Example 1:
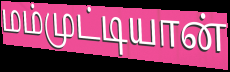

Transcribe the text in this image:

மம்முட்டியான்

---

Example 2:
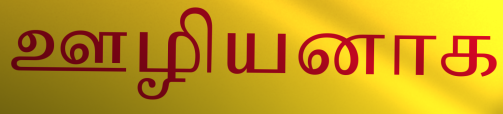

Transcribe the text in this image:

ஊழியனாக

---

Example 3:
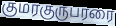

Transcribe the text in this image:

குமரகுருபரரை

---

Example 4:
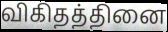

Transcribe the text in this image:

விகிதத்தினை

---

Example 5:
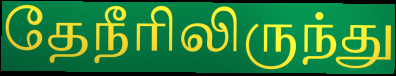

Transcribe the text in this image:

தேநீரிலிருந்து